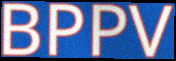
BPPV